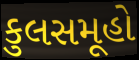
કુલસમૂહો